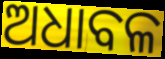
ଅଧାବଳ